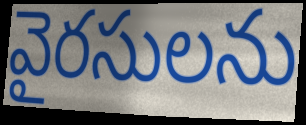
వైరసులను